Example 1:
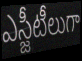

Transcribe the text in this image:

ఎస్జీటీలుగా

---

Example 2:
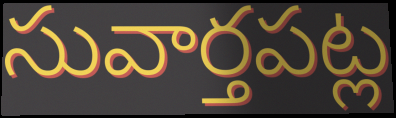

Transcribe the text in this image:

సువార్తపట్ల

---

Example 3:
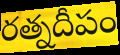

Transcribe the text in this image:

రత్నదీపం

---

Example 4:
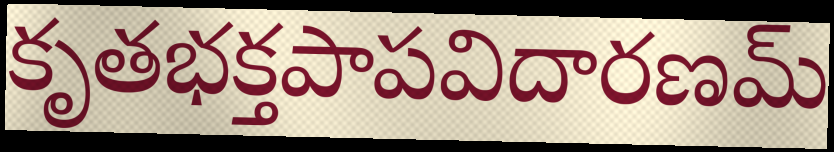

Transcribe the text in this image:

కృతభక్తపాపవిదారణమ్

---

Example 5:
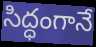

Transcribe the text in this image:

సిద్ధంగానే